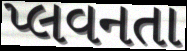
પ્લવનતા